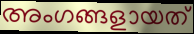
അംഗങ്ങളായത്